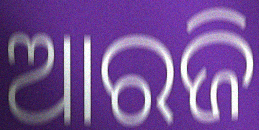
ଆରଜି